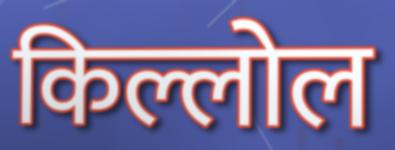
किल्लोल